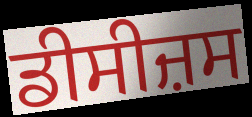
ਡੀਸੀਜ਼ਸ